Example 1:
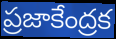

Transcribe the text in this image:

ప్రజాకేంద్రక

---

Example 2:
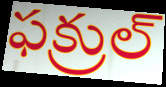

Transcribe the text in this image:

ఫక్రుల్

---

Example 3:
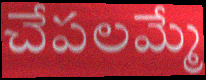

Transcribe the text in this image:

చేపలమ్మే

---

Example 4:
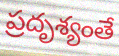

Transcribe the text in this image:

ప్రదృశ్యంతే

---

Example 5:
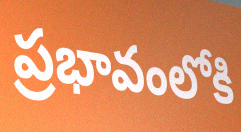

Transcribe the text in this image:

ప్రభావంలోకి